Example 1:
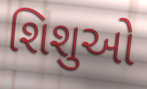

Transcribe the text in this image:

શિશુઓ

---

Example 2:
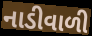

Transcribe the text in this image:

નાડીવાળી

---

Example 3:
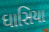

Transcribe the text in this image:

ઘાસિયા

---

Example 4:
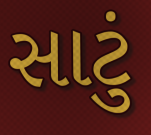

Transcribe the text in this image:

સાટું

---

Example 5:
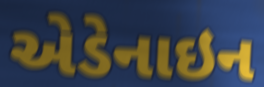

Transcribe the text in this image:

એડેનાઇન